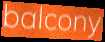
balcony